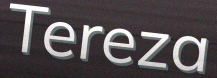
Tereza